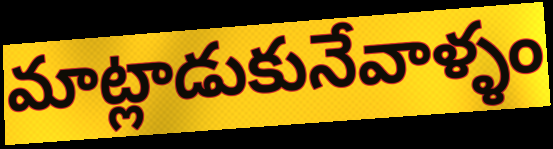
మాట్లాడుకునేవాళ్ళం